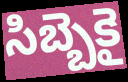
సిబ్బెకై